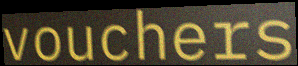
vouchers